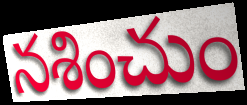
నశించుం